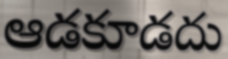
ఆడకూడదు